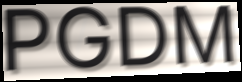
PGDM